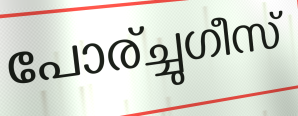
പോര്ച്ചുഗീസ്